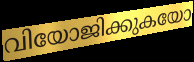
വിയോജിക്കുകയോ